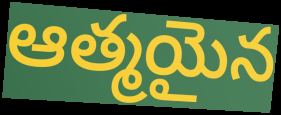
ఆత్మయైన